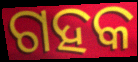
ଗହକ